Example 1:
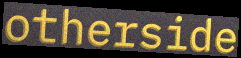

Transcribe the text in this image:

otherside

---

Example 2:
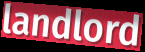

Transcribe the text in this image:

landlord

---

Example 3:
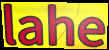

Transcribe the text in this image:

lahe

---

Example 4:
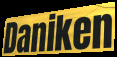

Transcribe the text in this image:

Daniken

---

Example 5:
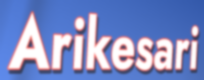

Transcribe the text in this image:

Arikesari